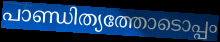
പാണ്ഡിത്യത്തോടൊപ്പം